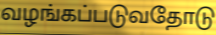
வழங்கப்படுவதோடு